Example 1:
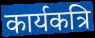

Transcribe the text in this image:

कार्यकत्रि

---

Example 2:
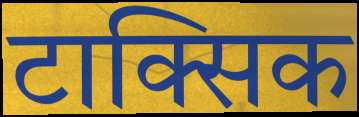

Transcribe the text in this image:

टाक्सिक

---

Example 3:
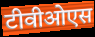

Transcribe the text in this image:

टीवीओएस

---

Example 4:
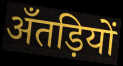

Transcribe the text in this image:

अँतड़ियों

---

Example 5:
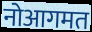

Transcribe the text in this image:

नोआगमत